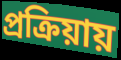
প্রক্রিয়ায়